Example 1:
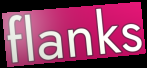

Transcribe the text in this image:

flanks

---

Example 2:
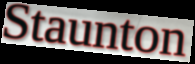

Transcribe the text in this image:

Staunton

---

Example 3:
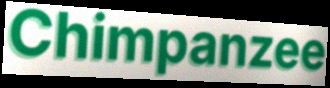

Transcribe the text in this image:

Chimpanzee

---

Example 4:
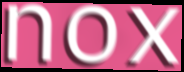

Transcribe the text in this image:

nox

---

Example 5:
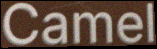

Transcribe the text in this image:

Camel